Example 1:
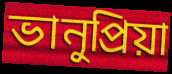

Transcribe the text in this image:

ভানুপ্রিয়া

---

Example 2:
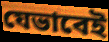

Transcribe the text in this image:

যেভাবেই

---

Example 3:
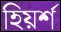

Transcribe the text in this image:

হিয়র্শ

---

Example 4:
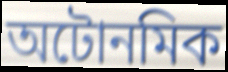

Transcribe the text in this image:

অটোনমিক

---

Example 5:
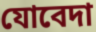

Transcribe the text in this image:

যোবেদা